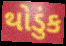
થોડુંક